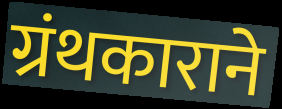
ग्रंथकाराने